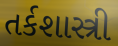
તર્કશાસ્ત્રી